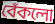
বেঁকলো